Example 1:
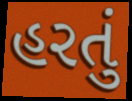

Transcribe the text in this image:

હરતું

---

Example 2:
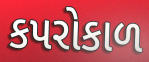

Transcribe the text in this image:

કપરોકાળ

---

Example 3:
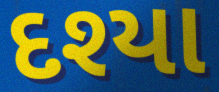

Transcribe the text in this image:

દશ્યા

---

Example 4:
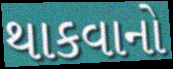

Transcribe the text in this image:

થાકવાનો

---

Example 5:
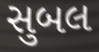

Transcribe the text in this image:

સુબલ